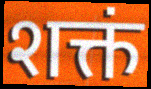
शक्तं